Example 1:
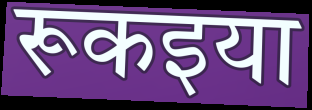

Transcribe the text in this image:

रूकइया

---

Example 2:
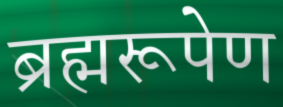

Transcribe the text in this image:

ब्रह्मरूपेण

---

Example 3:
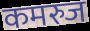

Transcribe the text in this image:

कमरुज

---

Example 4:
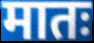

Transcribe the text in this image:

मातः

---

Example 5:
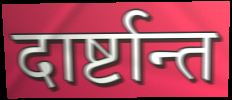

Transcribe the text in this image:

दार्ष्टान्त